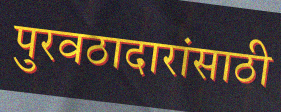
पुरवठादारांसाठी